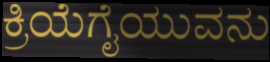
ಕ್ರಿಯೆಗೈಯುವನು